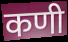
कणी